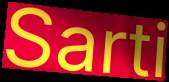
Sarti